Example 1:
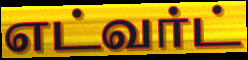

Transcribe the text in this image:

எட்வர்ட்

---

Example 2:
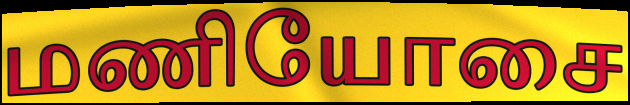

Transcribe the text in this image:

மணியோசை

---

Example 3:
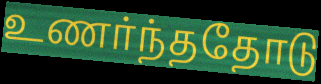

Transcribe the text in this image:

உணர்ந்ததோடு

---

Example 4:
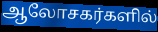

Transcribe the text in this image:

ஆலோசகர்களில்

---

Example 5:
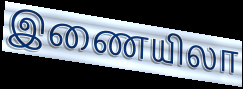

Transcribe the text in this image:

இணையிலா